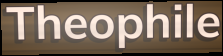
Theophile